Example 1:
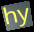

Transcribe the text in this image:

hy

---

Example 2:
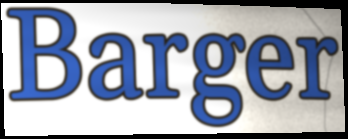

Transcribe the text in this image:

Barger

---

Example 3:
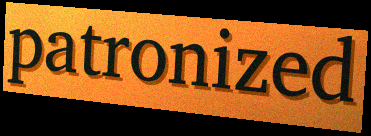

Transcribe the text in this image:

patronized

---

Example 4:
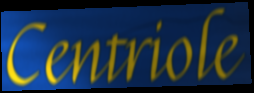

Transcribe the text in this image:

Centriole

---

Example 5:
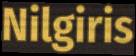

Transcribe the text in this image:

Nilgiris